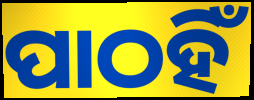
ପାଠହିଁ